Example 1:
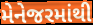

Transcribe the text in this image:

મેનેજરમાંથી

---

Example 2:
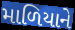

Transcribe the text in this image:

માળિયાને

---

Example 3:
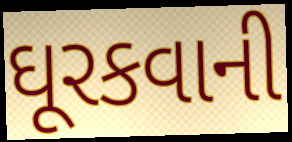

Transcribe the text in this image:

ઘૂરકવાની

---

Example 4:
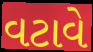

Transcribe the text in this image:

વટાવે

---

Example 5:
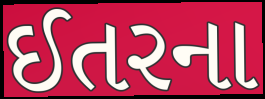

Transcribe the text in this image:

ઈતરના